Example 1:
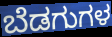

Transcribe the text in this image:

ಬೆಡಗುಗಳ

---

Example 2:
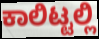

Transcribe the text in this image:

ಕಾಲಿಟ್ಟಲ್ಲಿ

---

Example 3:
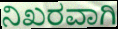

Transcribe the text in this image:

ನಿಖರವಾಗಿ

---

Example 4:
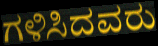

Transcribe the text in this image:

ಗಳಿಸಿದವರು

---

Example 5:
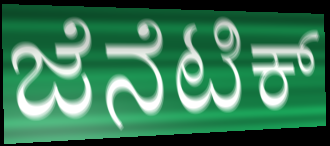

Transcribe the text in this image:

ಜೆನೆಟಿಕ್